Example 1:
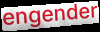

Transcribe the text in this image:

engender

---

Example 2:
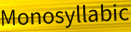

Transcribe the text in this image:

Monosyllabic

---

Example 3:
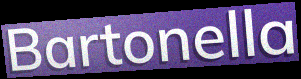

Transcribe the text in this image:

Bartonella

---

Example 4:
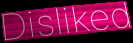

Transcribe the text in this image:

Disliked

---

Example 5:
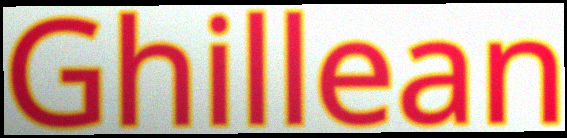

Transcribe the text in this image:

Ghillean